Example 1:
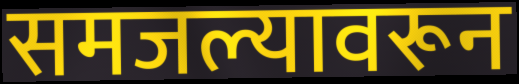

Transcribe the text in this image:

समजल्यावरून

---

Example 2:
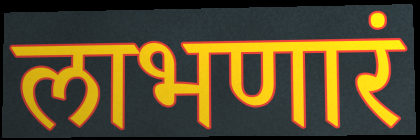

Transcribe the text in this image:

लाभणारं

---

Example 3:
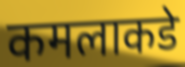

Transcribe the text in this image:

कमलाकडे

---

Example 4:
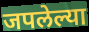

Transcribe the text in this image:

जपलेल्या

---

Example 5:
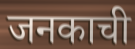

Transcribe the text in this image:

जनकाची